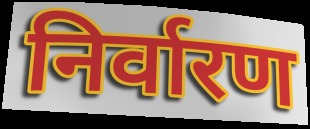
निर्वारण